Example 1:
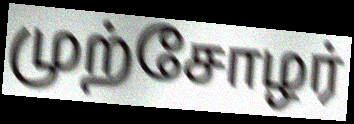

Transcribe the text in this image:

முற்சோழர்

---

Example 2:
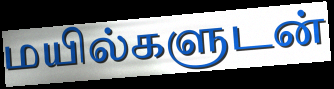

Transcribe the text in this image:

மயில்களுடன்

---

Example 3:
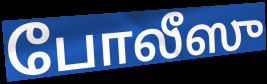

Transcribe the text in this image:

போலீஸு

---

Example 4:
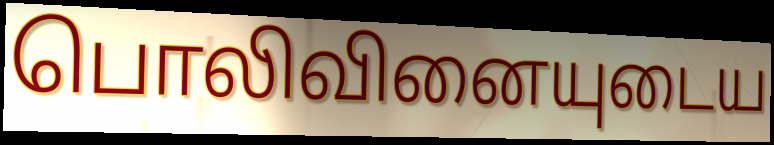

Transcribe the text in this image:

பொலிவினையுடைய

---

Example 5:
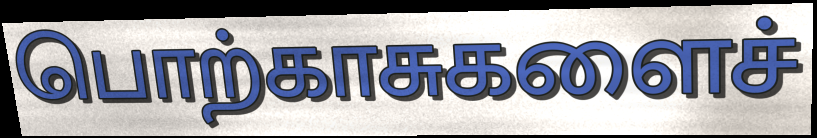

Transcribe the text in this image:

பொற்காசுகளைச்